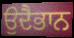
ਉਦੈਭਾਨ